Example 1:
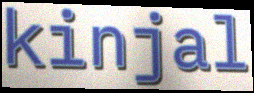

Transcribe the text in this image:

kinjal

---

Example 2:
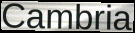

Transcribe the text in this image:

Cambria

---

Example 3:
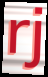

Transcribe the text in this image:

rj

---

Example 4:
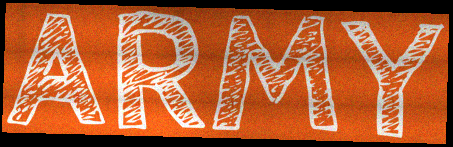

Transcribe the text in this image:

ARMY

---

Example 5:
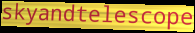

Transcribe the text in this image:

skyandtelescope